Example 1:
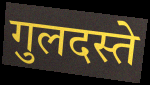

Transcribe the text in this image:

गुलदस्ते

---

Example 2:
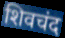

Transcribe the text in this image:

शिवचंद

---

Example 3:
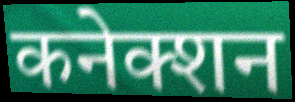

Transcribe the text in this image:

कनेक्‍शन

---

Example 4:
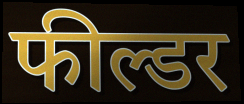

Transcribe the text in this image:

फील्डर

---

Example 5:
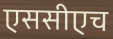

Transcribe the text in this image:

एससीएच